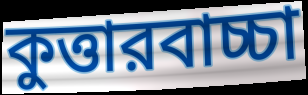
কুত্তারবাচ্চা